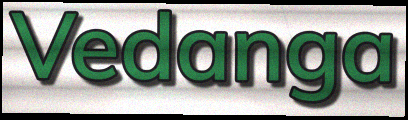
Vedanga